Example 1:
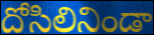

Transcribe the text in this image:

దోసిలినిండా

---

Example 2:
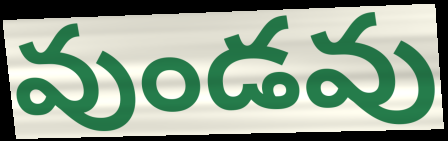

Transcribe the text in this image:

వుండవు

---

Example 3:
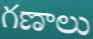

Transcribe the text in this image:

గణాలు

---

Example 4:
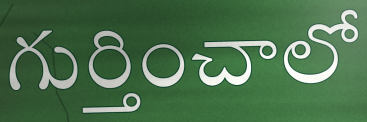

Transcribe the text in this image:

గుర్తించాలో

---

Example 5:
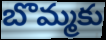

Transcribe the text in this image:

బొమ్మకు